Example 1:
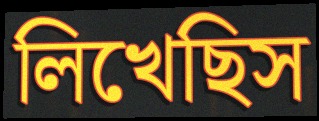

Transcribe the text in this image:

লিখেছিস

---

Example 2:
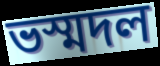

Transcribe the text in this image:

ভস্মদল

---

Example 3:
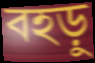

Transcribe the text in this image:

বহড়ু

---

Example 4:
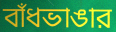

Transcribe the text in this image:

বাঁধভাঙার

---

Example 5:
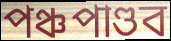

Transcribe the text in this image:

পঞ্চপাণ্ডব